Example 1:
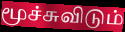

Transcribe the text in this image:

மூச்சுவிடும்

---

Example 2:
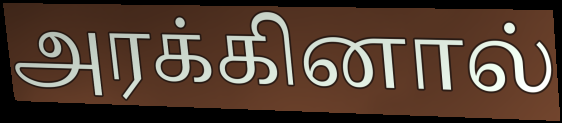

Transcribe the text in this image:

அரக்கினால்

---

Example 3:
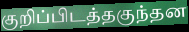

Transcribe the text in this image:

குறிப்பிடத்தகுந்தன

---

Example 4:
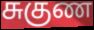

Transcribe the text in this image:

சுகுண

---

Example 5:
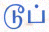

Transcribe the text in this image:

டூப்